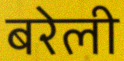
बरेली